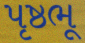
પૃષ્ઠભૂ